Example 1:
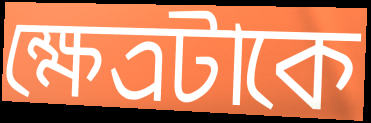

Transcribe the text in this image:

ক্ষেত্রটাকে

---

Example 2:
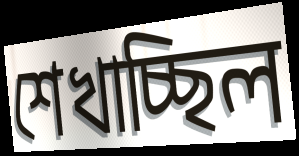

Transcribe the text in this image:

শেখাচ্ছিল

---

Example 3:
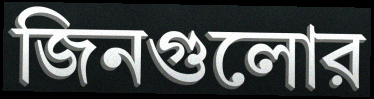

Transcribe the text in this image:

জিনগুলোর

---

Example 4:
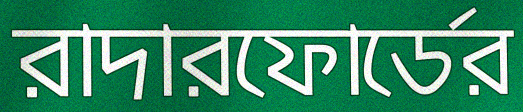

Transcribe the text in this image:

রাদারফোর্ডের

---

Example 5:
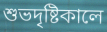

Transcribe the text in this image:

শুভদৃষ্টিকালে